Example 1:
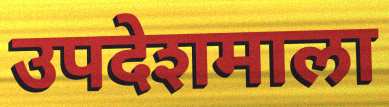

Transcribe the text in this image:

उपदेशमाला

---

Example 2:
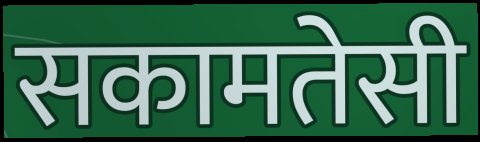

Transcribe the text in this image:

सकामतेसी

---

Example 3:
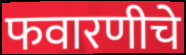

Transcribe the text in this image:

फवारणीचे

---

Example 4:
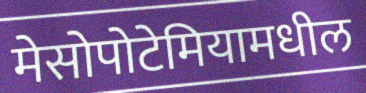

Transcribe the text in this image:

मेसोपोटेमियामधील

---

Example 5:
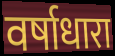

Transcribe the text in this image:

वर्षाधारा